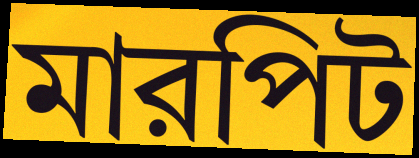
মারপিট